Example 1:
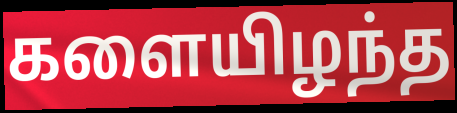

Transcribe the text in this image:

களையிழந்த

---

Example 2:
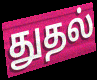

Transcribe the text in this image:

துதல்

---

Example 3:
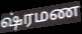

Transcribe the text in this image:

ஷ்ரமண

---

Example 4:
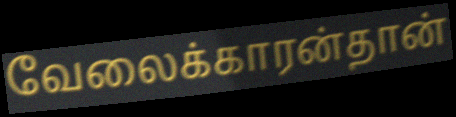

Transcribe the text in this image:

வேலைக்காரன்தான்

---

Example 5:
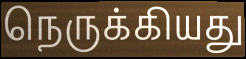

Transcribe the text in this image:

நெருக்கியது